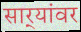
सार्यांवर